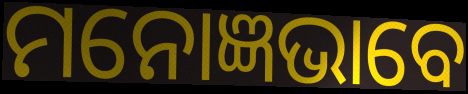
ମନୋଜ୍ଞଭାବେ